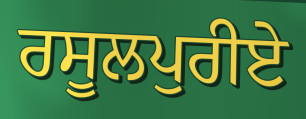
ਰਸੂਲਪੁਰੀਏ